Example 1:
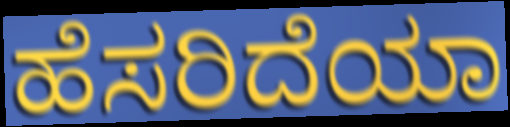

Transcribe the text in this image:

ಹೆಸರಿದೆಯಾ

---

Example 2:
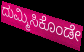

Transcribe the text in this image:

ದುಮ್ಮಿಸಿಕೊಂಡೇ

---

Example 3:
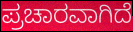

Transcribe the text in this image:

ಪ್ರಚಾರವಾಗಿದೆ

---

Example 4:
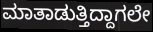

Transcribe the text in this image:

ಮಾತಾಡುತ್ತಿದ್ದಾಗಲೇ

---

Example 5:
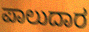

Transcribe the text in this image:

ಪಾಲುದಾರ